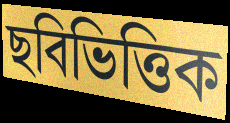
ছবিভিত্তিক